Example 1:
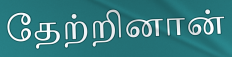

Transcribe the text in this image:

தேற்றினான்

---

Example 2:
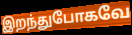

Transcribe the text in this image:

இறந்துபோகவே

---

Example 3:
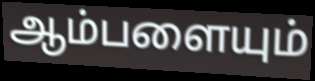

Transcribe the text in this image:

ஆம்பளையும்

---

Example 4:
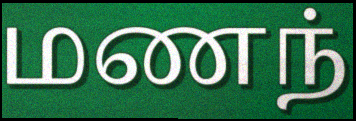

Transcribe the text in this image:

மணந்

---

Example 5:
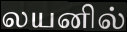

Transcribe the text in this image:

லயனில்